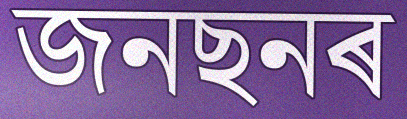
জনছনৰ